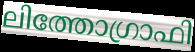
ലിത്തോഗ്രാഫി